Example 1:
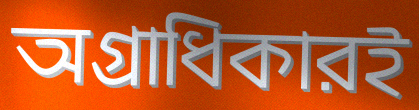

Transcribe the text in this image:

অগ্রাধিকারই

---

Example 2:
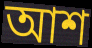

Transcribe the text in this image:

আশ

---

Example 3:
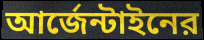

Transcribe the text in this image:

আর্জেন্টাইনের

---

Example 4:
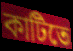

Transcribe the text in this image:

কাটিতে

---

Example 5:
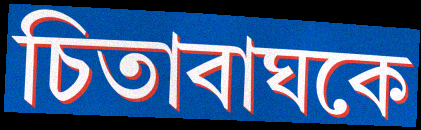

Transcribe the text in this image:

চিতাবাঘকে